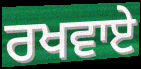
ਰਖਵਾਏ